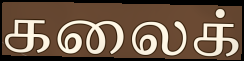
கலைக்